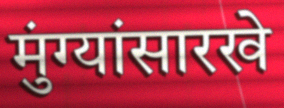
मुंग्यांसारखे